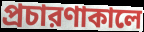
প্রচারণাকালে